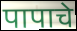
पापाचे